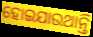
ହୋଇଯାଉଥାନ୍ତି